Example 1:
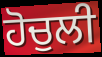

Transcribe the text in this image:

ਹੋਚੁਲੀ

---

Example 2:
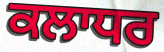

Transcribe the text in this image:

ਕਲਾਧਰ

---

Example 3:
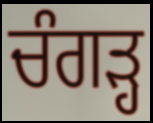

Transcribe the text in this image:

ਚੰਗੜ੍ਹ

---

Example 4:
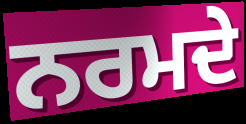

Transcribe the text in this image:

ਨਰਮਦੇ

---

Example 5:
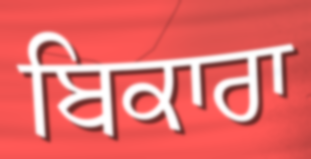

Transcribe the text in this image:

ਬਿਕਾਰਾ